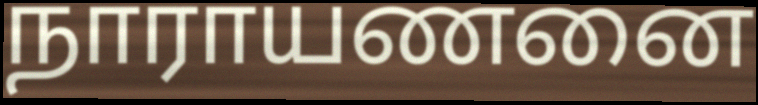
நாராயணனை